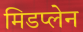
मिडप्लेन